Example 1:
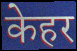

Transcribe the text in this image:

केहर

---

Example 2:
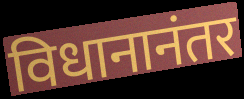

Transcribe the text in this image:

विधानानंतर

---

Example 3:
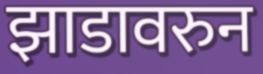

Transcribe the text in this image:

झाडावरुन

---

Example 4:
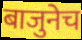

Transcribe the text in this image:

बाजुनेच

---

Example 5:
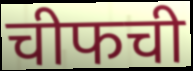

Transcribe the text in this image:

चीफची